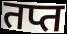
तप्त